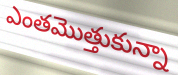
ఎంతమొత్తుకున్నా